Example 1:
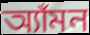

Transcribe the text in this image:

অ্যাঁমন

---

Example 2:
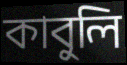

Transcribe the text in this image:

কাবুলি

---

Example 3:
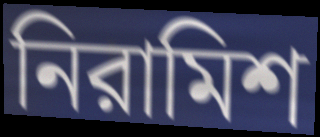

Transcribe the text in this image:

নিরামিশ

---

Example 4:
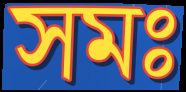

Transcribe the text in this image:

সমঃ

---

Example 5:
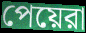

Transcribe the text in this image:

পেয়েরা